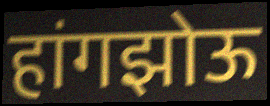
हांगझोऊ